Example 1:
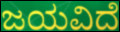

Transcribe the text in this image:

ಜಯವಿದೆ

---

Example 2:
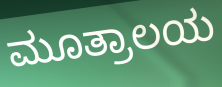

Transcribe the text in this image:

ಮೂತ್ರಾಲಯ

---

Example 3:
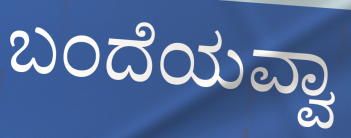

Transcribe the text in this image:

ಬಂದೆಯವ್ವಾ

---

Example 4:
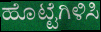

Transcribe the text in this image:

ಹೊಟ್ಟೆಗಿಳಿಸಿ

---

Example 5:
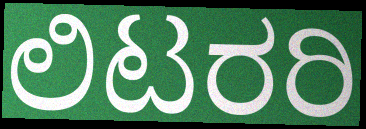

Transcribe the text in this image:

ಲಿಟರರಿ